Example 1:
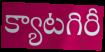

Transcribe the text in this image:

క్యాటగిరీ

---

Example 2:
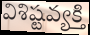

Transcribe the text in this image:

విశిష్టవ్యక్తి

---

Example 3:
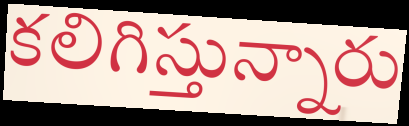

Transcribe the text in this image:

కలిగిస్తున్నారు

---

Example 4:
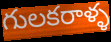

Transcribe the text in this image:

గులకరాళ్ళ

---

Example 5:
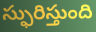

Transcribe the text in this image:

స్ఫురిస్తుంది